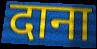
दाना